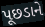
પૂછડાને